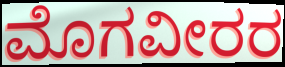
ಮೊಗವೀರರ